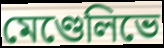
মেণ্ডেলিভে